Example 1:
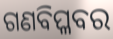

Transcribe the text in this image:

ଗଣବିପ୍ଳବର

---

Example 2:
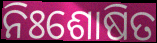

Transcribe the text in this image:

ନିଃଶୋଷିତ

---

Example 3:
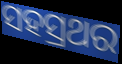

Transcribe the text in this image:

ସହସ୍ରଥର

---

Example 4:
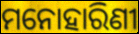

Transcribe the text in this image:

ମନୋହାରିଣୀ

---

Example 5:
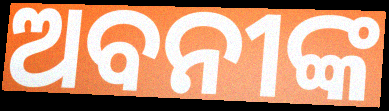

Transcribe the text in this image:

ଅବନୀଙ୍କ